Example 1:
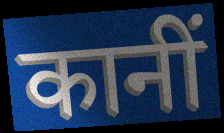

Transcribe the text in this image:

कानीं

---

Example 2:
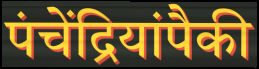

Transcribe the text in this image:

पंचेंद्रियांपैकी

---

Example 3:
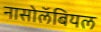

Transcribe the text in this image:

नासोलॅबियल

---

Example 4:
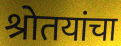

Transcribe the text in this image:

श्रोतयांचा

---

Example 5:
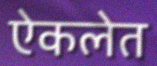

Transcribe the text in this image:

ऐकलेत